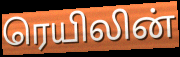
ரெயிலின்